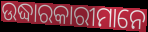
ଉଦ୍ଧାରକାରୀମାନେ